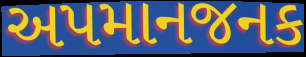
અપમાનજનક